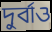
দুর্বাও